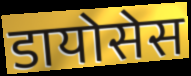
डायोसेस